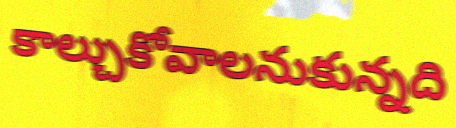
కాల్చుకోవాలనుకున్నది